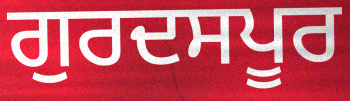
ਗੁਰਦਸਪੂਰ